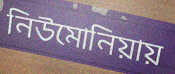
নিউমোনিয়ায়